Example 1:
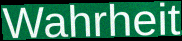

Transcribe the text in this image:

Wahrheit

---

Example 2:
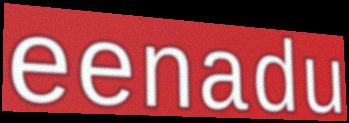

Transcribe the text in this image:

eenadu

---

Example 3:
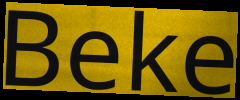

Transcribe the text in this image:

Beke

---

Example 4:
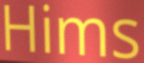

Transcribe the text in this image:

Hims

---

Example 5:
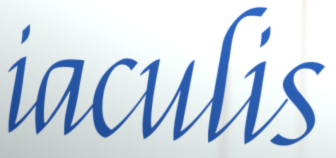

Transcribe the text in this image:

iaculis